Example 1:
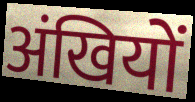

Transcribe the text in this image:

अंखियों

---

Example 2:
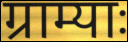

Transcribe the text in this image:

ग्राम्याः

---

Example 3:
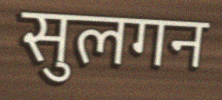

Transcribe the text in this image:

सुलगन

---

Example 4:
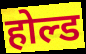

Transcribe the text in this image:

होल्ड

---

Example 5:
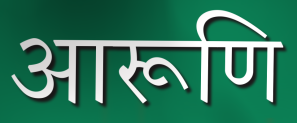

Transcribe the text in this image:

आरूणि